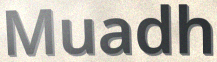
Muadh